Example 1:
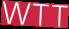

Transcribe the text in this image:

WTT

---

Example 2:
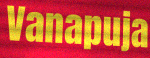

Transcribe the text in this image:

Vanapuja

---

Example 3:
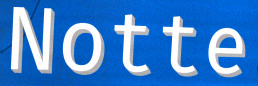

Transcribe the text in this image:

Notte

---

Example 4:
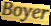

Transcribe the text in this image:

Boyer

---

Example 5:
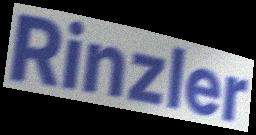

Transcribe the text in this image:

Rinzler